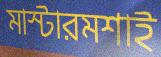
মাস্টারমশাই